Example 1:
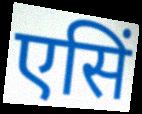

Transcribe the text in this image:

एसिं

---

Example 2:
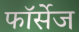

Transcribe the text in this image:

फॉर्सेज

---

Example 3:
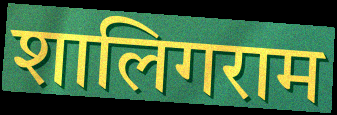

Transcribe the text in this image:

शालिगराम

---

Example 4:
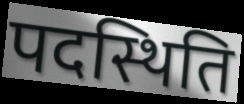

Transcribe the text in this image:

पदस्थिति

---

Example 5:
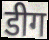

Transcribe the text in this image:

डीग